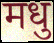
मधु